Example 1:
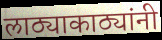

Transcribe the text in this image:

लाठ्याकाठ्यांनी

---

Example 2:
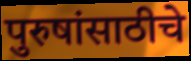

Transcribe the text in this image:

पुरुषांसाठीचे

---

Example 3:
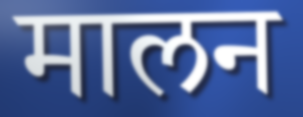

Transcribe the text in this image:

मालन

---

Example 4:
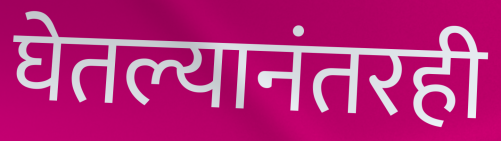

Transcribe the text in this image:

घेतल्यानंतरही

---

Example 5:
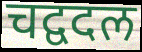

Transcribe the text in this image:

चद्वदल